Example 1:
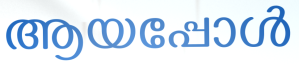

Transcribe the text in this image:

ആയപ്പോൾ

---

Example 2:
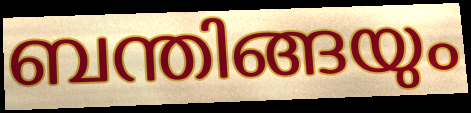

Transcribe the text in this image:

ബന്തിങ്ങയും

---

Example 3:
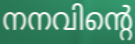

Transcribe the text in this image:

നനവിന്റെ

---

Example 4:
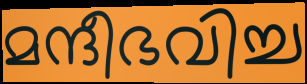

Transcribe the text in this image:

മന്ദീഭവിച്ച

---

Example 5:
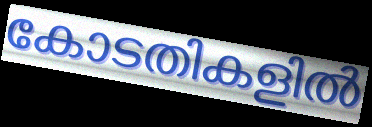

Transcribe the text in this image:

കോടതികളിൽ